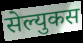
सेल्युकस